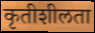
कृतीशीलता